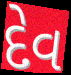
દેવ